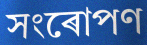
সংৰোপণ